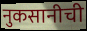
नुकसानीची